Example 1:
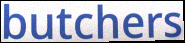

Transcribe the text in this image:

butchers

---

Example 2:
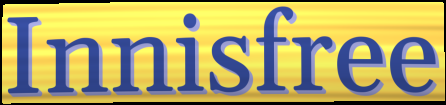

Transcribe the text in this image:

Innisfree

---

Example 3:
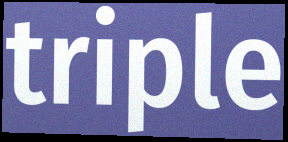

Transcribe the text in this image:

triple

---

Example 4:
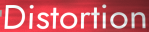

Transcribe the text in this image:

Distortion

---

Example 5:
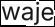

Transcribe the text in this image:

waje